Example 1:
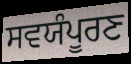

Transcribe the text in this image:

ਸਵਯੰਪੂਰਣ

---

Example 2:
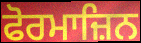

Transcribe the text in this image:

ਫੋਰਮਾਜ਼ਿਨ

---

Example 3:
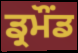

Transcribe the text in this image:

ਡ੍ਰਮੌਂਡ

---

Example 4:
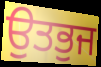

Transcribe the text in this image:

ਉਤਭੁਜ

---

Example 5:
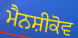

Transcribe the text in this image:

ਮੈਨਸ਼ੀਕੋਵ